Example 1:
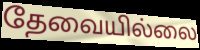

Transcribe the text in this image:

தேவையில்லை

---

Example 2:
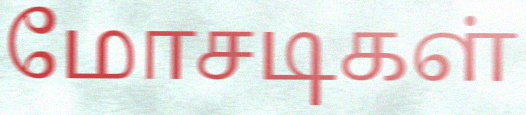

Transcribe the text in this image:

மோசடிகள்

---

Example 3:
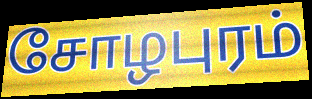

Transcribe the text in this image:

சோழபுரம்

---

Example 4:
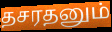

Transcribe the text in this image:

தசரதனும்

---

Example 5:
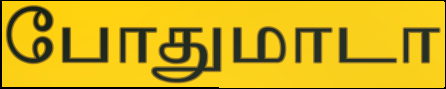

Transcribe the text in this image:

போதுமாடா